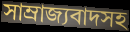
সাম্রাজ্যবাদসহ